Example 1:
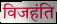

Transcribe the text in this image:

विजहंति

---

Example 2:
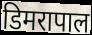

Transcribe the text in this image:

डिमरापाल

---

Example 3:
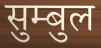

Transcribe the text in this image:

सुम्बुल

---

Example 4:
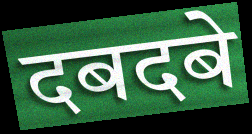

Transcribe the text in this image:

दबदबे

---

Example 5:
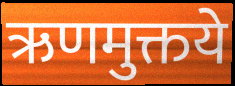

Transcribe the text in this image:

ऋणमुक्तये